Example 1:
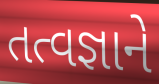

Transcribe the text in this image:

તત્વજ્ઞાને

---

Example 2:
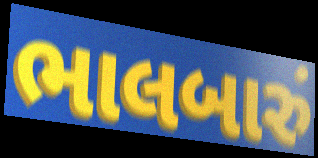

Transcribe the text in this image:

ભાલબારું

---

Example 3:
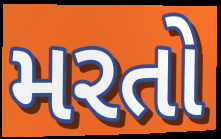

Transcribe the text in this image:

મરતો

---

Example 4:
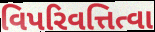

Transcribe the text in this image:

વિપરિવત્તિત્વા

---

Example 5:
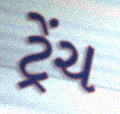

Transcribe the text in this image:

ટ્રેંચ